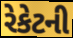
રેકેટની